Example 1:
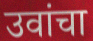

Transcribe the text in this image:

उवांचा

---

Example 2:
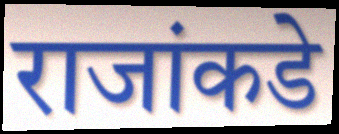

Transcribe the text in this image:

राजांकडे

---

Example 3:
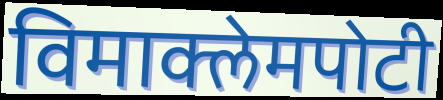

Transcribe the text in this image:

विमाक्लेमपोटी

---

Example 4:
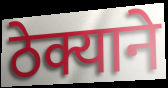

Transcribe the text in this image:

ठेक्याने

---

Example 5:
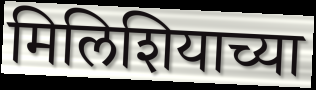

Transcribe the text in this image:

मिलिशियाच्या